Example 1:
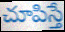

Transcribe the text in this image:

చూపిస్తే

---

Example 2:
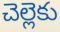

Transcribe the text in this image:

చెల్లెకు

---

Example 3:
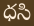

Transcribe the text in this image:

ధసి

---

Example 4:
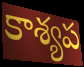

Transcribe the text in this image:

కాశ్యప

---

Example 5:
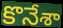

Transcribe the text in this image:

కొనేశా